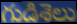
గుడిశెలు